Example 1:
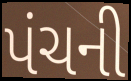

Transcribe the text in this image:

પંચની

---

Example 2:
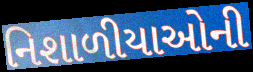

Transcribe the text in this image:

નિશાળીયાઓની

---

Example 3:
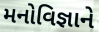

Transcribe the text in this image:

મનોવિજ્ઞાને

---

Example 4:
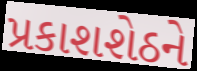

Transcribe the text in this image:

પ્રકાશશેઠને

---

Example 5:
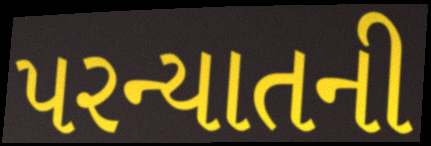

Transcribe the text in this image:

પરન્યાતની